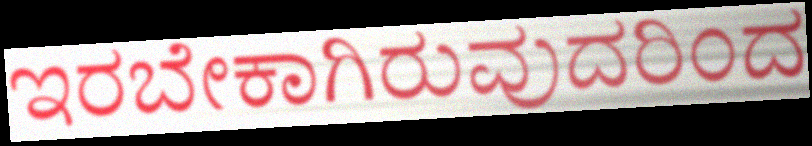
ಇರಬೇಕಾಗಿರುವುದರಿಂದ